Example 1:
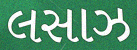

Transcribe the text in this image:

લસાઝ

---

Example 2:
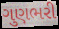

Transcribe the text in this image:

ગુણભરી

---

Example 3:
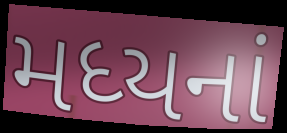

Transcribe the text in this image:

મધ્યનાં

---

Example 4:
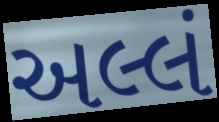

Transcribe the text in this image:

અલ્લં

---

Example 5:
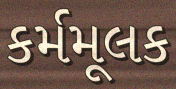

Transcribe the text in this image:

કર્મમૂલક